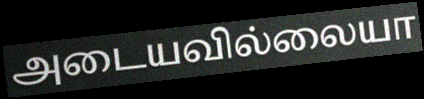
அடையவில்லையா